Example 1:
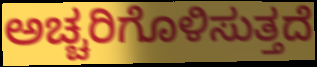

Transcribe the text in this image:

ಅಚ್ಚರಿಗೊಳಿಸುತ್ತದೆ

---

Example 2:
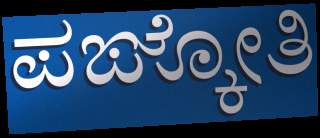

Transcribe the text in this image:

ಪಙ್ಕೋತಿ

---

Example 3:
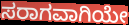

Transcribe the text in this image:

ಸರಾಗವಾಗಿಯೇ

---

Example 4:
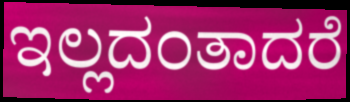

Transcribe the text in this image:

ಇಲ್ಲದಂತಾದರೆ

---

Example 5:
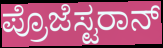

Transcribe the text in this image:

ಪ್ರೊಜೆಸ್ಟರಾನ್